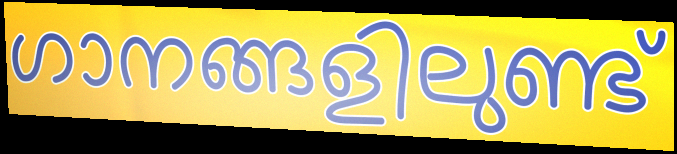
ഗാനങ്ങളിലുണ്ട്